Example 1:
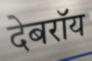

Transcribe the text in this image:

देबरॉय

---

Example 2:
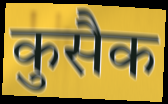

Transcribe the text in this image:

कुसैक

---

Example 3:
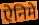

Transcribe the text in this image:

ऐनिमे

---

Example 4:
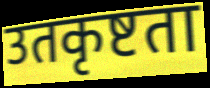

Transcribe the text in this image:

उतकृष्टता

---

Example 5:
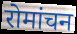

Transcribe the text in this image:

रोमांचन